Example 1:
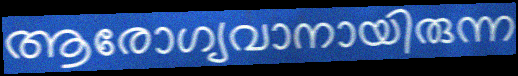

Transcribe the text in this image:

ആരോഗ്യവാനായിരുന്ന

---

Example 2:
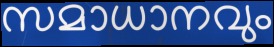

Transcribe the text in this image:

സമാധാനവും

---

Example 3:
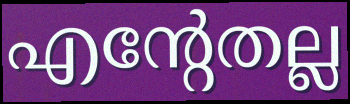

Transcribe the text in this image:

എന്റേതല്ല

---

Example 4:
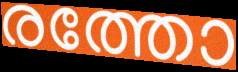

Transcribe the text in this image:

രത്തോ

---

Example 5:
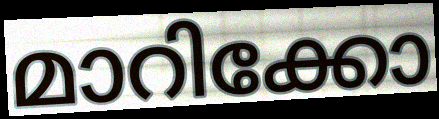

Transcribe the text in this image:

മാറിക്കോ